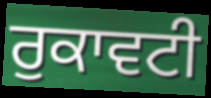
ਰੁਕਾਵਟੀ